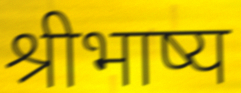
श्रीभाष्य